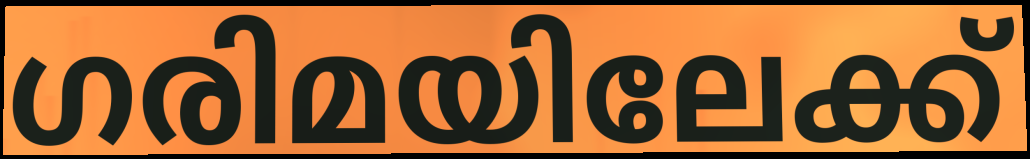
ഗരിമയിലേക്ക്